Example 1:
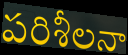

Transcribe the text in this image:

పరిశీలనా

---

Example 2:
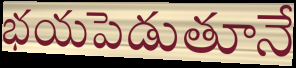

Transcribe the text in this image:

భయపెడుతూనే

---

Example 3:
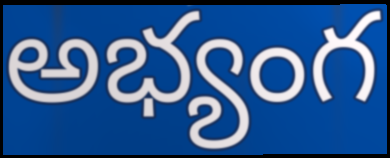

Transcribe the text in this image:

అభ్యంగ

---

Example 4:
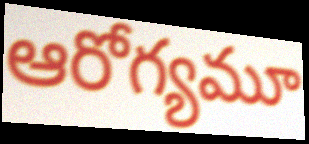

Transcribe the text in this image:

ఆరోగ్యమూ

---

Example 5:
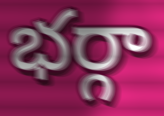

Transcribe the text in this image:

భర్గా